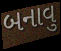
બનાવુ